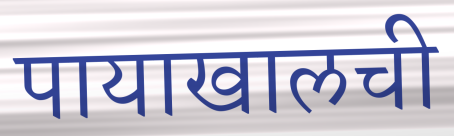
पायाखालची